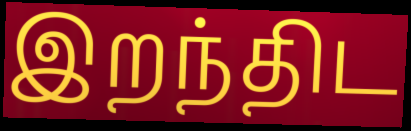
இறந்திட